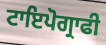
ਟਾਇਪੋਗ੍ਰਾਫੀ